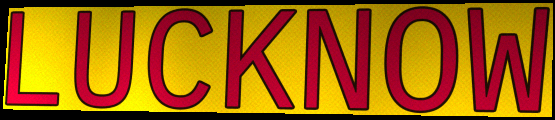
LUCKNOW